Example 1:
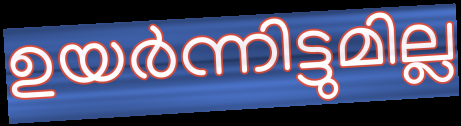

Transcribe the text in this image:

ഉയർന്നിട്ടുമില്ല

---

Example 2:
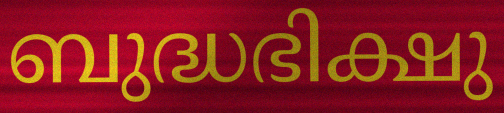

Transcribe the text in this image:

ബുദ്ധഭിക്ഷു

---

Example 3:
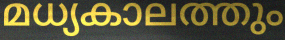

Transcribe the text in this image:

മധ്യകാലത്തും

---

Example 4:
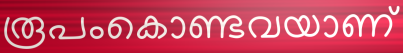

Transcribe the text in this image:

രൂപംകൊണ്ടവയാണ്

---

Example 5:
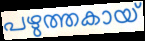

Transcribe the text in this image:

പഴുത്തകായ്